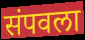
संपवला